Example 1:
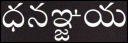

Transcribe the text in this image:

ధనఞ్జయ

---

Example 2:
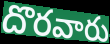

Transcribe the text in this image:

దొరవారు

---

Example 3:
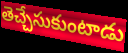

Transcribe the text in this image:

తెచ్చేసుకుంటాడు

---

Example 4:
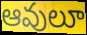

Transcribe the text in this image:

ఆవులూ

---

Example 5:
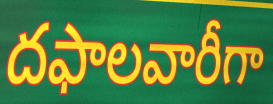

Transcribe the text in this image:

దఫాలవారీగా